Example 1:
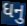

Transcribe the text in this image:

ધનુ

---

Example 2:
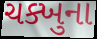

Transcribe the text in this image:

ચક્ખુના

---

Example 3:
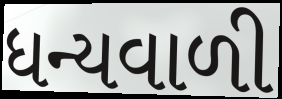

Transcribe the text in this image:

ધન્યવાળી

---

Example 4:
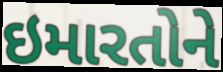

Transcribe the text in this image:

ઇમારતોને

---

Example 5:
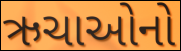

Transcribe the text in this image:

ઋચાઓનો